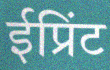
ईप्रिंट